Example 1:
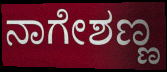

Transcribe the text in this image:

ನಾಗೇಶಣ್ಣ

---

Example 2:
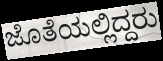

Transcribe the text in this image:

ಜೊತೆಯಲ್ಲಿದ್ದರು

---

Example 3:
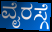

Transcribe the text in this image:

ವೈರಸ್ಗೆ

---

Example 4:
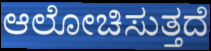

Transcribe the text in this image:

ಆಲೋಚಿಸುತ್ತದೆ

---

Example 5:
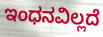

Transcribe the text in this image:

ಇಂಧನವಿಲ್ಲದೆ